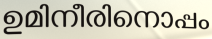
ഉമിനീരിനൊപ്പം